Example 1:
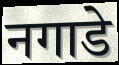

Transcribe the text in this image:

नगाडे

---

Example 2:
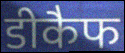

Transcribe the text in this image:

डीकैफ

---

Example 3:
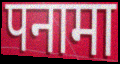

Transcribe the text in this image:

पनामा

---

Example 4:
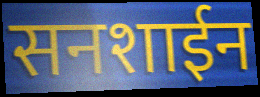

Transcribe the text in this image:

सनशाईन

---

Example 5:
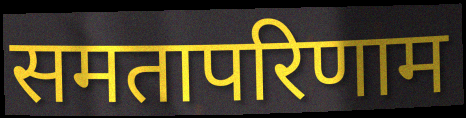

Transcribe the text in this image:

समतापरिणाम